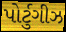
પોર્ટુગીઝ